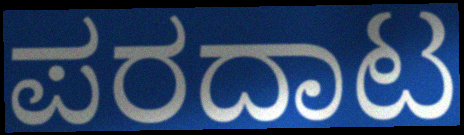
ಪರದಾಟ